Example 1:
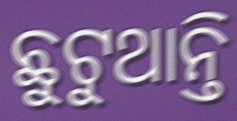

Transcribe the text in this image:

ଛୁଟୁଥାନ୍ତି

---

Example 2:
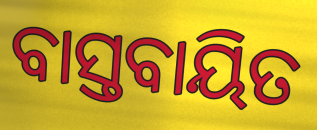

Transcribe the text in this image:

ବାସ୍ତବାୟିତ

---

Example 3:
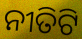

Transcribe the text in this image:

ନୀତିଟି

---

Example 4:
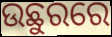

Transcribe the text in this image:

ଉଛୁରରେ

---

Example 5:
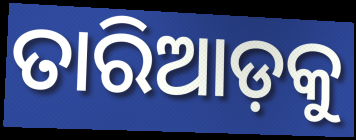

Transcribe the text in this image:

ତାରିଆଡ଼କୁ